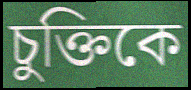
চুক্তিকে